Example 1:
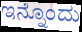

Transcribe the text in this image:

ಇನ್ನೊಂದು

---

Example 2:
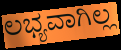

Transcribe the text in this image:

ಲಭ್ಯವಾಗಿಲ್ಲ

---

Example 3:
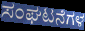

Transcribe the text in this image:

ಸಂಘಟನೆಗಳ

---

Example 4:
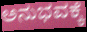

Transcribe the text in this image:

ಅನುಭವಕ್ಕೆ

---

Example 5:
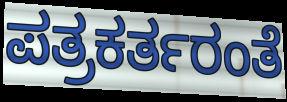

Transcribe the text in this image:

ಪತ್ರಕರ್ತರಂತೆ